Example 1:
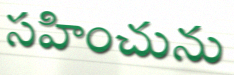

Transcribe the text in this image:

సహించును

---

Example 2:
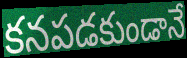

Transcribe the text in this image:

కనపడకుండానే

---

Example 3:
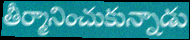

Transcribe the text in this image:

తీర్మానించుకున్నాడు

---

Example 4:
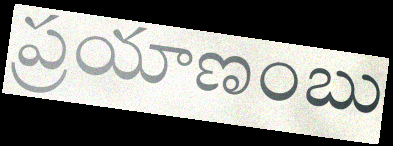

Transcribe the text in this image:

ప్రయాణంబు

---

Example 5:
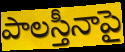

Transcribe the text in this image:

పాలస్తీనాపై